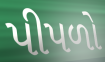
પીપળો